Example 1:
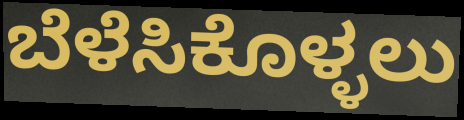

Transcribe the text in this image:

ಬೆಳೆಸಿಕೊಳ್ಳಲು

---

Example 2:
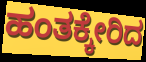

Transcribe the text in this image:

ಹಂತಕ್ಕೇರಿದ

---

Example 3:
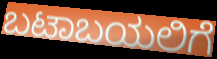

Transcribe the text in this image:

ಬಟಾಬಯಲಿಗೆ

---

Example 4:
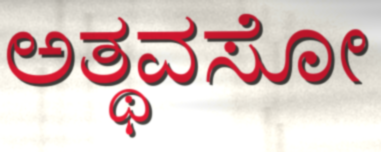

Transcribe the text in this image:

ಅತ್ಥವಸೋ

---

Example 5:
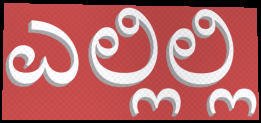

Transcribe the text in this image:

ಎಲ್ಲಿಲ್ಲಿ